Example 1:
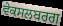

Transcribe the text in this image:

ਵੇਕਸਲਬਰਗ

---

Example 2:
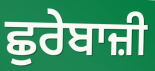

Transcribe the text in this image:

ਛੁਰੇਬਾਜ਼ੀ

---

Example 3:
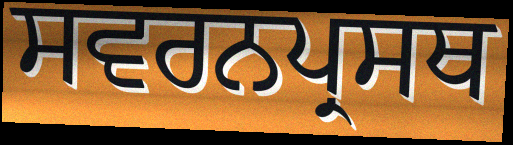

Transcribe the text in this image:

ਸਵਰਨਪ੍ਰਸਥ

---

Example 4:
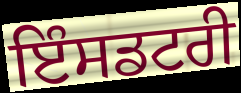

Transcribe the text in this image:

ਇੰਸਡਟਰੀ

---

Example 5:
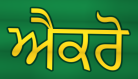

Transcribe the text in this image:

ਐਕਰੋ